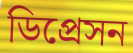
ডিপ্রেসন